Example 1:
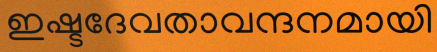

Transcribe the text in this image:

ഇഷ്ടദേവതാവന്ദനമായി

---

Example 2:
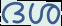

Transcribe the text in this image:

ദശ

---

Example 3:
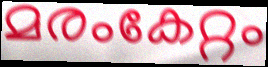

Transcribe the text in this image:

മരംകേറ്റം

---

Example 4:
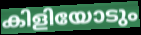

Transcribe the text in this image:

കിളിയോടും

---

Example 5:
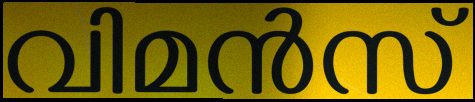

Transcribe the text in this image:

വിമൻസ്